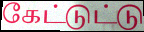
கேட்டுட்டு